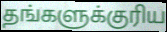
தங்களுக்குரிய